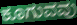
ಕೂಗುವವು